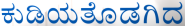
ಕುಡಿಯತೊಡಗಿದ